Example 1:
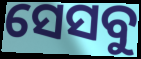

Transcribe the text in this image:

ସେସବୁ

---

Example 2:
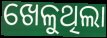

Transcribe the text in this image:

ଖେଳୁଥିଲା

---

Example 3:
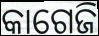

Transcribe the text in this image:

କାଗେଜି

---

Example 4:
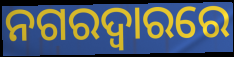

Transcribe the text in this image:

ନଗରଦ୍ୱାରରେ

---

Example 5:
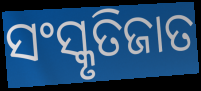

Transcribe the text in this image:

ସଂସ୍କୃତିଜାତ